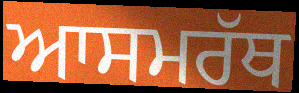
ਆਸਮਰੱਥ